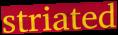
striated